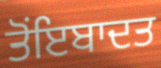
ਤੋਂਇਬਾਦਤ